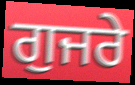
ਗੁਜਰੇ